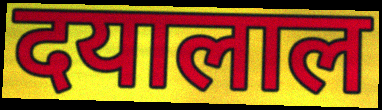
दयालाल